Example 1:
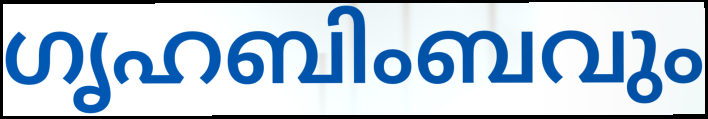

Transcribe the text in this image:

ഗൃഹബിംബവും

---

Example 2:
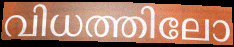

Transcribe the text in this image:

വിധത്തിലോ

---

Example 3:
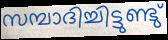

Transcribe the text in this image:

സമ്പാദിച്ചിട്ടുണ്ടു്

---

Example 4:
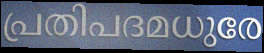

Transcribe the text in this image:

പ്രതിപദമധുരേ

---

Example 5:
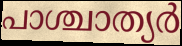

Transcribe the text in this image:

പാശ്ചാത്യർ